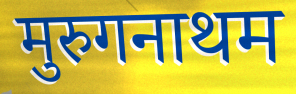
मुरुगनाथम